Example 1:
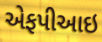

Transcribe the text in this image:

એફપીઆઇ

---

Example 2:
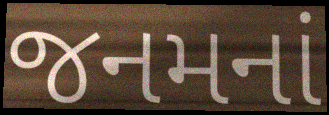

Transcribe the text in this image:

જનમનાં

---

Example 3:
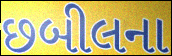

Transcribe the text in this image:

છબીલના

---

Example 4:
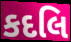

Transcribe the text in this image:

કદલિ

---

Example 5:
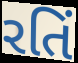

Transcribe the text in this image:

રતિં